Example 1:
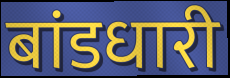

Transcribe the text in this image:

बांडधारी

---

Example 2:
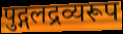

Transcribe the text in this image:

पुद्गलद्रव्यरूप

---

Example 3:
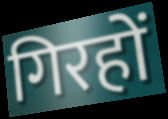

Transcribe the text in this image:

गिरहों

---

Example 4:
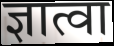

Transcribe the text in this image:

ज्ञात्वा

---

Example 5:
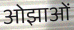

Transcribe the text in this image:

ओझाओं